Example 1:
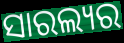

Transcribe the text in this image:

ସାରଲ୍ୟର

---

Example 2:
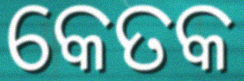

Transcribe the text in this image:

କେତକ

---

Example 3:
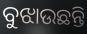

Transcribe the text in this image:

ବୁଝାଉଛନ୍ତି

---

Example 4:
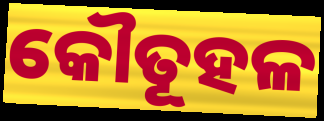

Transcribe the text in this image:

କୌତୂହଳ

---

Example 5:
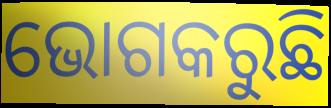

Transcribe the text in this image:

ଭୋଗକରୁଛି